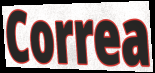
Correa